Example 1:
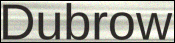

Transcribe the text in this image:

Dubrow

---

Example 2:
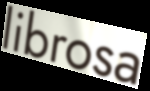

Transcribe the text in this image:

librosa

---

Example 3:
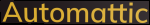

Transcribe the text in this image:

Automattic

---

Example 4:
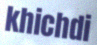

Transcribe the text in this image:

khichdi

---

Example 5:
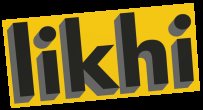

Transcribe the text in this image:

likhi